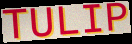
TULIP